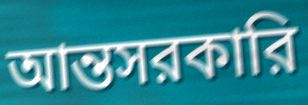
আন্তসরকারি